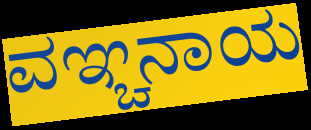
ವಞ್ಚನಾಯ